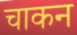
चाकन